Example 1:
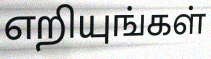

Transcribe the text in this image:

எறியுங்கள்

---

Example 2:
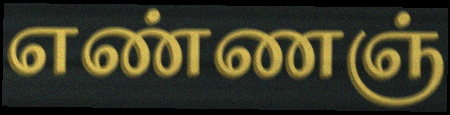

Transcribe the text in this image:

எண்ணஞ்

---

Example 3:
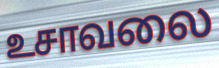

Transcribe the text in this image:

உசாவலை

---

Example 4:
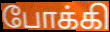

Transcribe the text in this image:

போக்கி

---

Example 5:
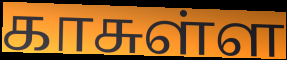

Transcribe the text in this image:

காசுள்ள